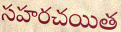
సహరచయిత